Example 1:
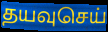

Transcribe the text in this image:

தயவுசெய்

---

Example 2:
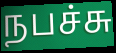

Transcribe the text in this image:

நபச்சு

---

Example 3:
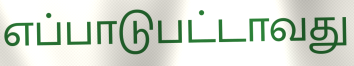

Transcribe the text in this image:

எப்பாடுபட்டாவது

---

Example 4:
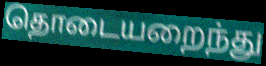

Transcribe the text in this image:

தொடையறைந்து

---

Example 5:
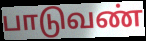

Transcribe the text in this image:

பாடுவண்